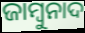
ଜାମ୍ବୁନାଦ